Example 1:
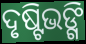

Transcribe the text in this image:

ଦୃଷ୍ଟିଭଙ୍ଗି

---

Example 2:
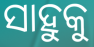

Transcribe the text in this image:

ସାହୁକୁ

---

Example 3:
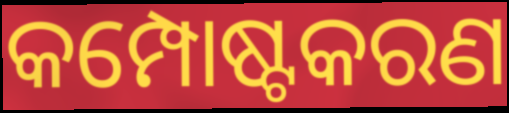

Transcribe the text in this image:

କମ୍ପୋଷ୍ଟକରଣ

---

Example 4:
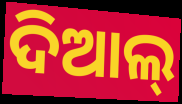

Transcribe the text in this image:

ଦିଆଲ୍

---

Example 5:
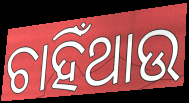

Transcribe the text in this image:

ଚାହିଁଥାଉ